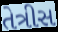
તેત્રીસ